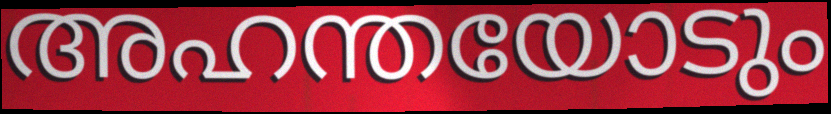
അഹന്തയോടും